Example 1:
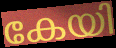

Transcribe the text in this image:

കേയി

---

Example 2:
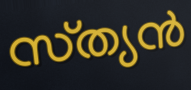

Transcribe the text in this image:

സ്‌ത്യൻ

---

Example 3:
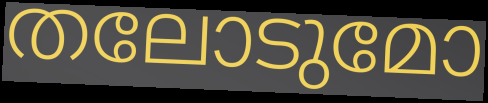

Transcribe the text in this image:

തലോടുമോ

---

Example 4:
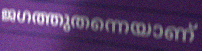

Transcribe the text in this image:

ജഗത്തുതന്നെയാണ്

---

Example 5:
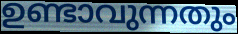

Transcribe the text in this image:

ഉണ്ടാവുന്നതും